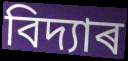
বিদ্যাৰ